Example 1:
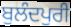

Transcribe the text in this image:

ਬੁਲੰਦਪੁਰੀ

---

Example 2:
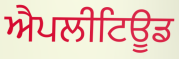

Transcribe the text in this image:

ਐਪਲੀਟਿਊਡ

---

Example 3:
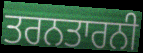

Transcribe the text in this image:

ਤਰਨਤਾਰਨੀ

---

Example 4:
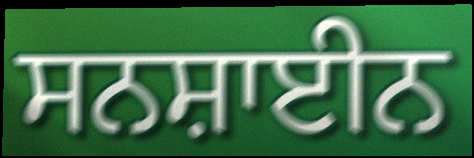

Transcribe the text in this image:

ਸਨਸ਼ਾਈਨ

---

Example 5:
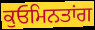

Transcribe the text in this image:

ਕੁਓਮਿਨਤਾਂਗ